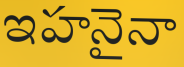
ఇహనైనా